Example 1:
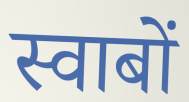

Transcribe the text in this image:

स्वाबों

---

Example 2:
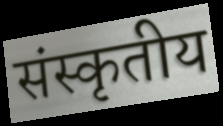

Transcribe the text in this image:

संस्कृतीय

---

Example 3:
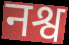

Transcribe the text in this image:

नश्व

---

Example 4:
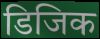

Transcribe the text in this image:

डिजिक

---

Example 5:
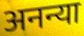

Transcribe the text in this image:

अनन्या